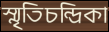
স্মৃতিচন্দ্রিকা